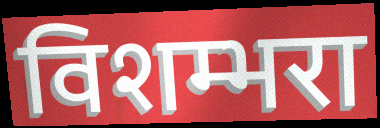
विशम्भरा